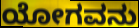
ಯೋಗವನು